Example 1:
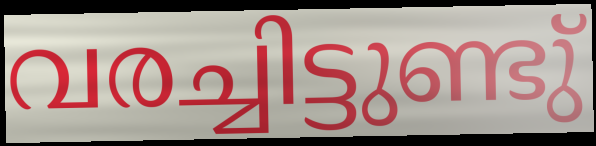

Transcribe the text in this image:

വരച്ചിട്ടുണ്ടു്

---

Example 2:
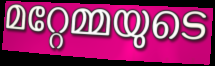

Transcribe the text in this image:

മറ്റേമ്മയുടെ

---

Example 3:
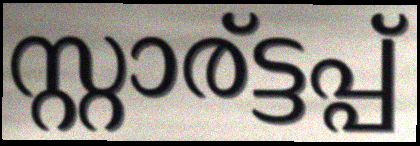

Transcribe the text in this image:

സ്റ്റാര്ട്ടപ്പ്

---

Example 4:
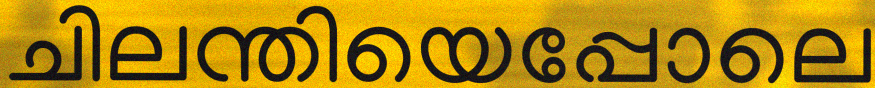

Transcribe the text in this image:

ചിലന്തിയെപ്പോലെ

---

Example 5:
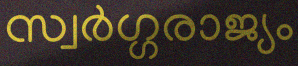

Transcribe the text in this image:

സ്വർഗ്ഗരാജ്യം